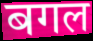
बगल